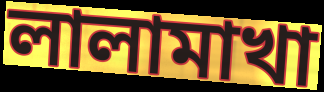
লালামাখা